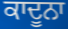
ਕਾਦੂਨਾ